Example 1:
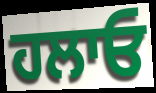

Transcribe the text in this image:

ਹਲਾਓ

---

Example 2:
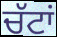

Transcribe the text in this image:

ਚੱਟਾਂ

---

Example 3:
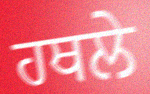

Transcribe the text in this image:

ਹਥਲੇ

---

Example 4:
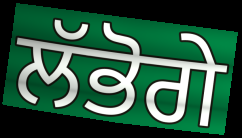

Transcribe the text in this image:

ਲੱਭੋਗੇ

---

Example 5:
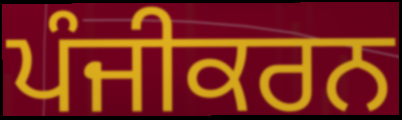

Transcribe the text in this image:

ਪੰਜੀਕਰਨ